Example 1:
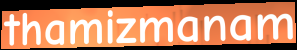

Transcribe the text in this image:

thamizmanam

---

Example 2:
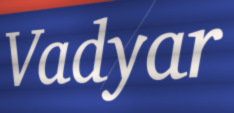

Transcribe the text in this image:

Vadyar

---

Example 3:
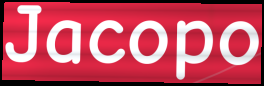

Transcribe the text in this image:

Jacopo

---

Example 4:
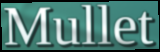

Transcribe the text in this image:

Mullet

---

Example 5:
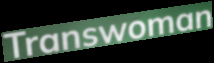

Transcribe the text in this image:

Transwoman